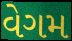
વેગમ